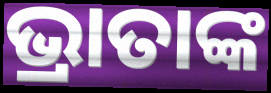
ଭ୍ରାତାଙ୍କ